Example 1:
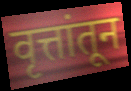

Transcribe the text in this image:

वृत्तांतून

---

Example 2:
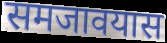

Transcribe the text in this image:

समजावयास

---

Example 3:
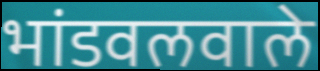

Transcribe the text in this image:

भांडवलवाले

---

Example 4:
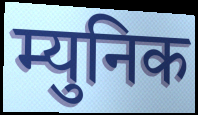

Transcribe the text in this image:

म्युनिक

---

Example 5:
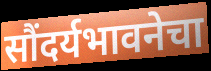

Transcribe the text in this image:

सौंदर्यभावनेचा